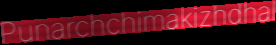
Punarchchimakizhdhal